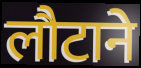
लौटाने